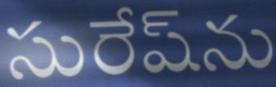
సురేష్‌ను